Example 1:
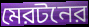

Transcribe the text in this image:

মেরটনের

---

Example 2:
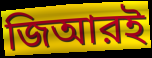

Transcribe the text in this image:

জিআরই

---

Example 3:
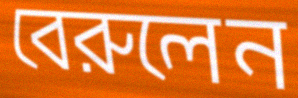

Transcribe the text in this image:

বেরুলেন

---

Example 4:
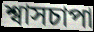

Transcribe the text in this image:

শ্বাসচাপা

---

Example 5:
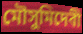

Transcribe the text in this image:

মৌসুমিদেবী